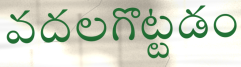
వదలగొట్టడం